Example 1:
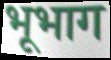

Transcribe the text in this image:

भूभाग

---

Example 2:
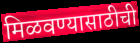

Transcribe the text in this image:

मिळवण्यासाठीची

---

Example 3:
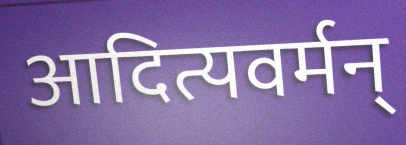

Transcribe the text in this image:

आदित्यवर्मन्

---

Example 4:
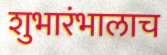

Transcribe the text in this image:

शुभारंभालाच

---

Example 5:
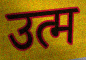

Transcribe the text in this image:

उत्म